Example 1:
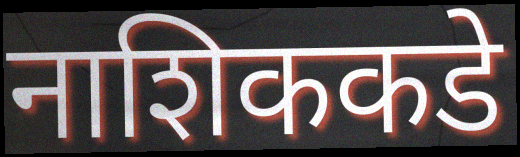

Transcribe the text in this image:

नाशिककडे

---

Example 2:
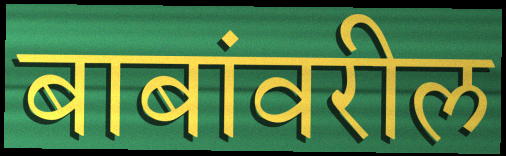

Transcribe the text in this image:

बाबांवरील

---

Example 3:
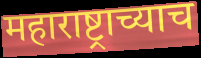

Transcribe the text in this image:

महाराष्ट्राच्याच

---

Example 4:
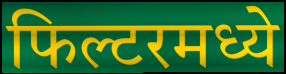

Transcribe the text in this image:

फिल्टरमध्ये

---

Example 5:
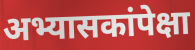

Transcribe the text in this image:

अभ्यासकांपेक्षा